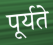
पूर्यते